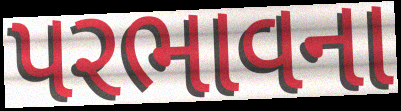
પરભાવના